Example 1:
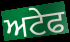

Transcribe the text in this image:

ਅਟੇਫ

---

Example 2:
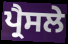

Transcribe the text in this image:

ਪ੍ਰੈਸਲੇ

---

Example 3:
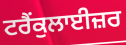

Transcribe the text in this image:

ਟਰੈਂਕੁਲਾਈਜ਼ਰ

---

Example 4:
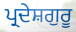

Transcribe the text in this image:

ਪ੍ਰਦੇਸ਼ਗੁਰੂ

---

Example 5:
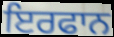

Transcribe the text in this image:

ਇਰਫਾਨ